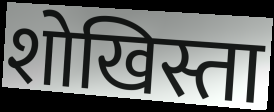
शोखिस्ता